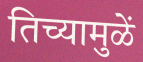
तिच्यामुळें